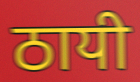
ठायी